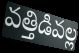
వత్తిడివల్ల